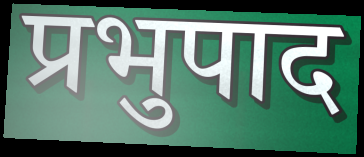
प्रभुपाद